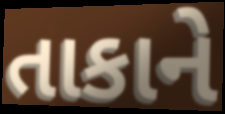
તાકાને